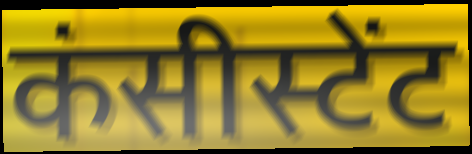
कंसीस्टेंट